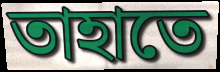
তাহাতে